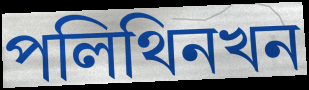
পলিথিনখন